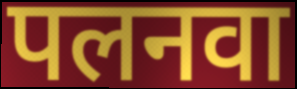
पलनवा